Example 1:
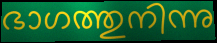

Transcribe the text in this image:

ഭാഗത്തുനിന്നു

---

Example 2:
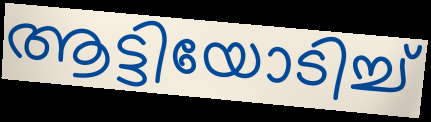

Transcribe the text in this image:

ആട്ടിയോടിച്ച്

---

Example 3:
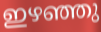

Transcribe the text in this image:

ഇഴഞ്ഞു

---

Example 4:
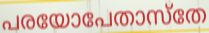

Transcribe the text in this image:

പരയോപേതാസ്തേ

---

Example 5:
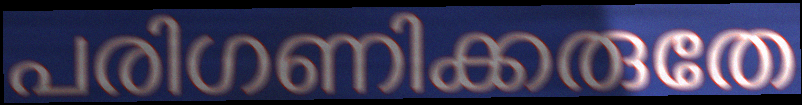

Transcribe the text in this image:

പരിഗണിക്കരുതേ